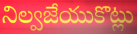
నిల్వజేయుకొట్లు